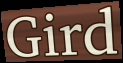
Gird